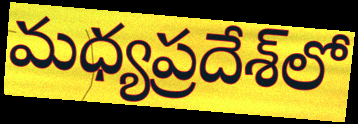
మధ్యప్రదేశ్‌లో